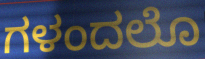
ಗಳಂದಲೊ